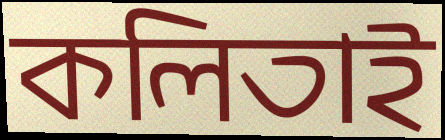
কলিতাই